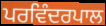
ਪਰਵਿੰਦਰਪਾਲ